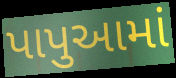
પાપુઆમાં